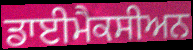
ਡਾਈਮੈਕਸੀਅਨ